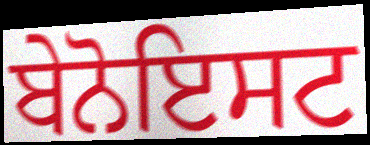
ਬੇਨੋਇਸਟ